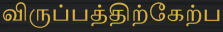
விருப்பத்திற்கேற்ப